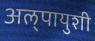
अल्पायुशी